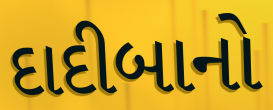
દાદીબાનો